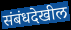
संबंधदेखील